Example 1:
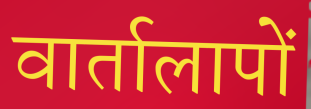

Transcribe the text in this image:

वार्तालापों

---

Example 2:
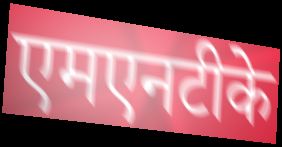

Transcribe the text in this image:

एमएनटीके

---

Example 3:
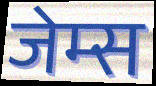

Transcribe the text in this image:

जेम्स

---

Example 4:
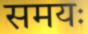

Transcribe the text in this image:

समयः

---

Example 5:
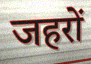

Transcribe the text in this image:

जहरों